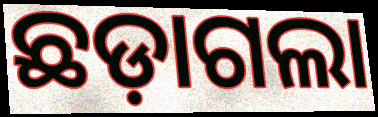
ଛଡ଼ାଗଲା